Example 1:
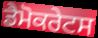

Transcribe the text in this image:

ਡੈਮੋਕਰੇਟਸ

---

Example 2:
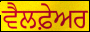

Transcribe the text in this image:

ਵੈਲਫ਼ੇਅਰ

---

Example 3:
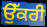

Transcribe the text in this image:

ਉੱਕਰੀ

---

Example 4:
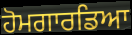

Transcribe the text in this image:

ਹੋਮਗਾਰਡਿਆ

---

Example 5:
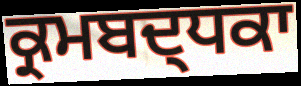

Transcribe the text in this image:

ਕ੍ਰਮਬਦ੍ਧਕਾ